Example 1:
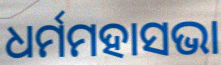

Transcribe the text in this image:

ଧର୍ମମହାସଭା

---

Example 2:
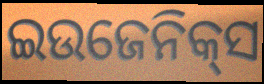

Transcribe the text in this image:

ଇଉଜେନିକ୍‌ସ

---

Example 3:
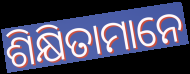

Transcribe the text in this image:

ଶିକ୍ଷିତାମାନେ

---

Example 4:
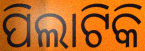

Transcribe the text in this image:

ପିଲାଟିକି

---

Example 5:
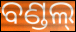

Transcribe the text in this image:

ବଣ୍ଡଲ୍